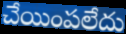
చేయింపలేదు